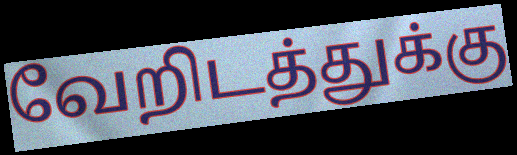
வேறிடத்துக்கு